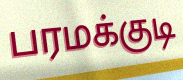
பரமக்குடி